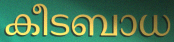
കീടബാധ